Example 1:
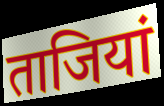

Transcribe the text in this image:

ताजियां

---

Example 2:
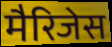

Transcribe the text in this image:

मैरिजेस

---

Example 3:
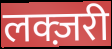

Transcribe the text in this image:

लक्ज़री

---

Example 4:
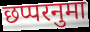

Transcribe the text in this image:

छप्परनुमा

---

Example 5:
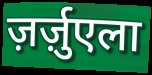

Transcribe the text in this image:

ज़र्ज़ुएला